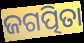
ଜଗତ୍ପିତା